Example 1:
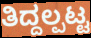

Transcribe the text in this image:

ತಿದ್ದಲ್ಪಟ್ಟ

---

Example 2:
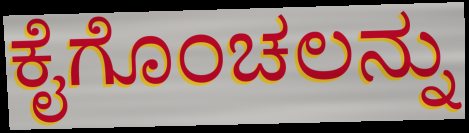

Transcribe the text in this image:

ಕೈಗೊಂಚಲನ್ನು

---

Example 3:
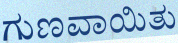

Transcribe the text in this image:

ಗುಣವಾಯಿತು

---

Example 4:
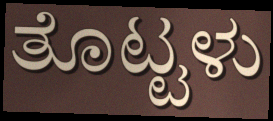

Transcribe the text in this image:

ತೊಟ್ಟಳು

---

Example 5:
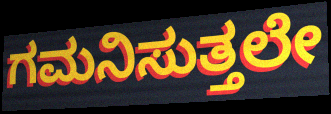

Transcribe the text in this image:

ಗಮನಿಸುತ್ತಲೇ